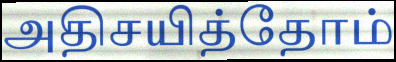
அதிசயித்தோம்